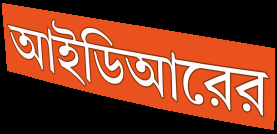
আইডিআরের